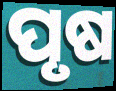
ପୃଷ